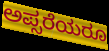
ಅಪ್ಸರೆಯರೂ